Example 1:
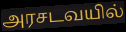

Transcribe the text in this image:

அரசடவயில்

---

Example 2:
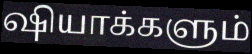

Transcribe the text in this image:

ஷியாக்களும்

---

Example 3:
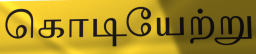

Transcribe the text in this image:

கொடியேற்று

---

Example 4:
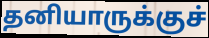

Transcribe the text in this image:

தனியாருக்குச்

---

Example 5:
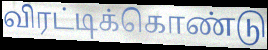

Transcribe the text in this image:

விரட்டிக்கொண்டு